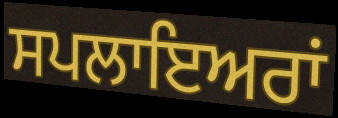
ਸਪਲਾਇਅਰਾਂ